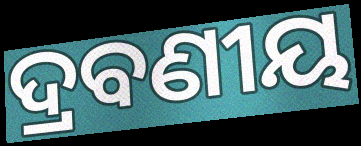
ଦ୍ରବଣୀୟ